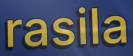
rasila